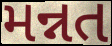
મન્નત